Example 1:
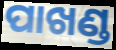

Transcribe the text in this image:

ପାଖଣ୍ଡ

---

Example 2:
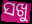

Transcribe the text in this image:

ସଖୁ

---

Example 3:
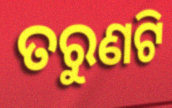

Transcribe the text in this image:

ତରୁଣଟି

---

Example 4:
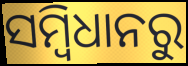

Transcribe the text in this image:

ସମ୍ବିଧାନରୁ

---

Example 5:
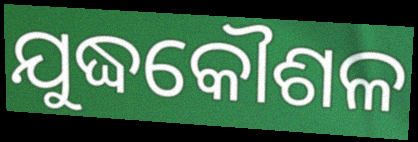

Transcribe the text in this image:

ଯୁଦ୍ଧକୌଶଳ